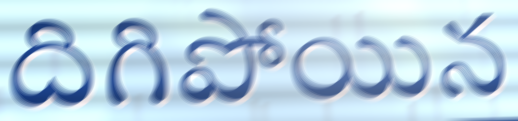
దిగిపోయిన